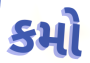
કમો